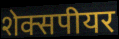
शेक्सपीयर